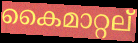
കൈമാറ്റല്